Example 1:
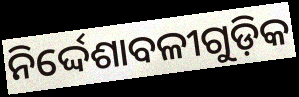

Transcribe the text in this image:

ନିର୍ଦ୍ଦେଶାବଳୀଗୁଡ଼ିକ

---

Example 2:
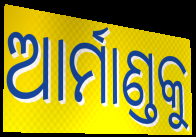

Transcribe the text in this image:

ଆର୍ମାଣ୍ଡକୁ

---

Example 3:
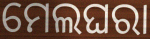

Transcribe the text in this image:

ମେଲଘରା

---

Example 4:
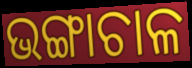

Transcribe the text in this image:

ଭଙ୍ଗାଚାଳ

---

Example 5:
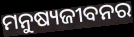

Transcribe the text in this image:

ମନୁଷ୍ୟଜୀବନର